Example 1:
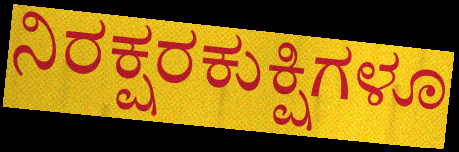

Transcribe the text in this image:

ನಿರಕ್ಷರಕುಕ್ಷಿಗಳೂ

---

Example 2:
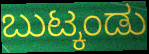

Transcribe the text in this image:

ಬುಟ್ಕಂಡು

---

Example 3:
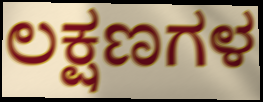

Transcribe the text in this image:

ಲಕ್ಷಣಗಳ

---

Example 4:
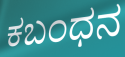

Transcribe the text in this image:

ಕಬಂಧನ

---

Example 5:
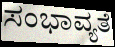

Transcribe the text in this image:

ಸಂಭಾವ್ಯತೆ